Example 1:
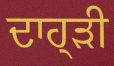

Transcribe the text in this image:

ਦਾਹ੍ੜੀ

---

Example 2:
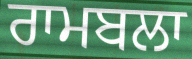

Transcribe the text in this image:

ਰਾਮਬਲਾ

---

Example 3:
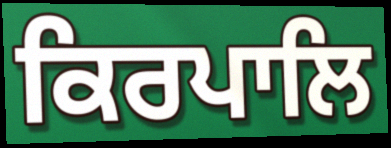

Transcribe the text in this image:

ਕਿਰਪਾਲਿ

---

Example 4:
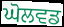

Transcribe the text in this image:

ਘੋਲਵਡ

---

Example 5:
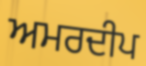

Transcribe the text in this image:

ਅਮਰਦੀਪ